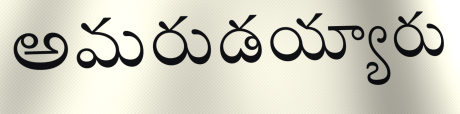
అమరుడయ్యారు